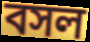
বসল